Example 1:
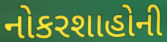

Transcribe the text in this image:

નોકરશાહોની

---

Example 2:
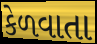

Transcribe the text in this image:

કેળવાતા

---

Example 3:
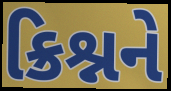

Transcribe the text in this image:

ક્રિશ્નને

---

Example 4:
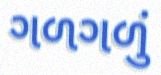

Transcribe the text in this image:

ગળગળું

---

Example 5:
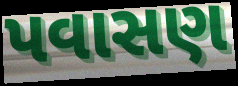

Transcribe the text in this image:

પવાસણ